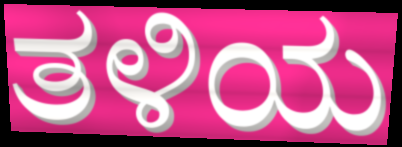
ತಳಿಯ